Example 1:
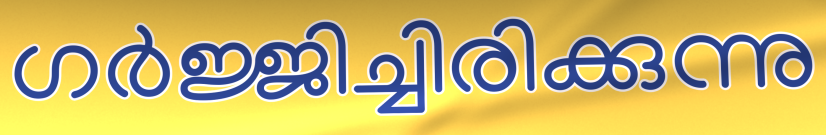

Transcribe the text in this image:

ഗർജ്ജിച്ചിരിക്കുന്നു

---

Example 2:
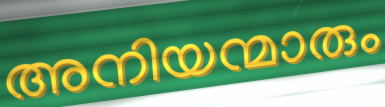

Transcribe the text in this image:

അനിയന്മാരും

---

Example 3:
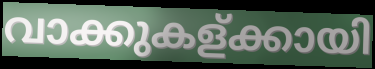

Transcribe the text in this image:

വാക്കുകള്ക്കായി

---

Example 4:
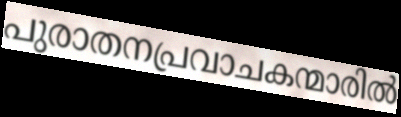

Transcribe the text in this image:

പുരാതനപ്രവാചകന്മാരിൽ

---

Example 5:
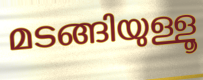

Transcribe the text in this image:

മടങ്ങിയുള്ളൂ